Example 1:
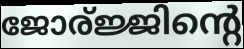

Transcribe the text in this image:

ജോര്ജ്ജിന്റെ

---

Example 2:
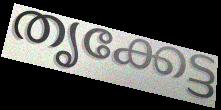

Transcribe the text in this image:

തൃക്കേട്ട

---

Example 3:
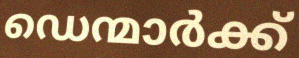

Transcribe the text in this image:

ഡെന്മാർക്ക്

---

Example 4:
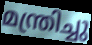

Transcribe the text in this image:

മന്ത്രിച്ചു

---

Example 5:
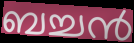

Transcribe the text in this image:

ബച്ചൻ